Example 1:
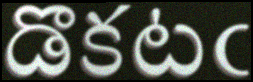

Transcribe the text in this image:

డొకటఁ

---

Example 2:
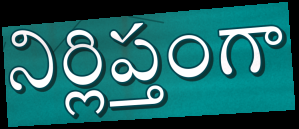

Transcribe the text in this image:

నిర్లిప్తంగా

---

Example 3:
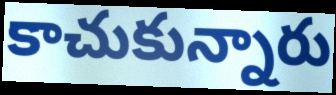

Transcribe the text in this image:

కాచుకున్నారు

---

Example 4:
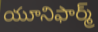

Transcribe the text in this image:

యూనిఫార్మ్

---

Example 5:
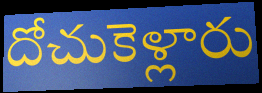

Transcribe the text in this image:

దోచుకెళ్లారు